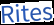
Rites